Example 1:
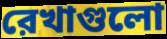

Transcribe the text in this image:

রেখাগুলো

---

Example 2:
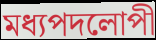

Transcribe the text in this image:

মধ্যপদলোপী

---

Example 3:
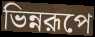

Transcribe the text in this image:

ভিন্নরূপে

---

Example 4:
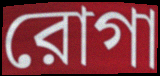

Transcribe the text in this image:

রোগা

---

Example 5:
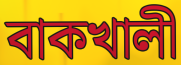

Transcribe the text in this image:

বাকখালী